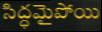
సిద్ధమైపోయి